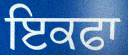
ਇਕਫਾ